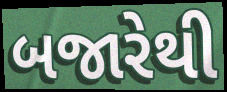
બજારેથી